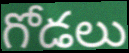
గోడలు